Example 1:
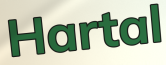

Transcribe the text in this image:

Hartal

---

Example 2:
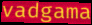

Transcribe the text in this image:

vadgama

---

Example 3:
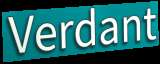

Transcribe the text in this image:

Verdant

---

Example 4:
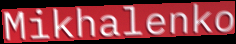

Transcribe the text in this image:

Mikhalenko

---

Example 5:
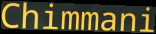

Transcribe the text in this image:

Chimmani